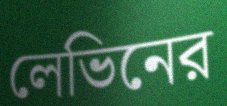
লেভিনের